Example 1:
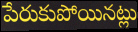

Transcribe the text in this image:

పేరుకుపోయినట్లు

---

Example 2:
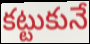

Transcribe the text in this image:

కట్టుకునే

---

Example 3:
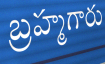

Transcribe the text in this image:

బ్రహ్మగారు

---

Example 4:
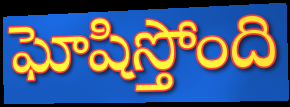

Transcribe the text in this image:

ఘోషిస్తోంది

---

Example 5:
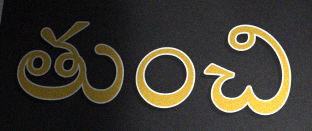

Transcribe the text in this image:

తుంచి